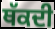
ਥੱਕਦੀ